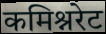
कमिश्नरेट